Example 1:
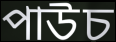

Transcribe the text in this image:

পাউচ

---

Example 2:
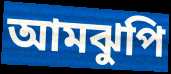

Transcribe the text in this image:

আমঝুপি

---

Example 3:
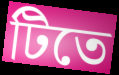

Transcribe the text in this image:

টিতে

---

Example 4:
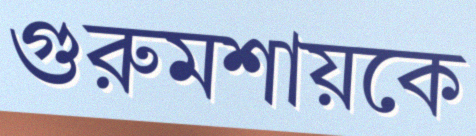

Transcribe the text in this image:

গুরুমশায়কে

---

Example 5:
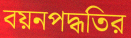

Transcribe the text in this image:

বয়নপদ্ধতির